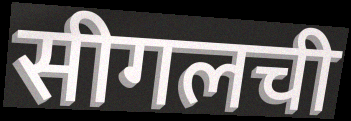
सीगलची